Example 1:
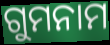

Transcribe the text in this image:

ଗୁମନାମ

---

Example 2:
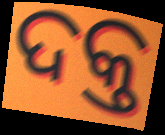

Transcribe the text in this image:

ଦକ୍ତ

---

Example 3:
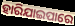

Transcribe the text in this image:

ହାରିଯାଇପାରେ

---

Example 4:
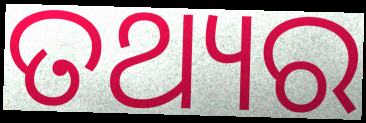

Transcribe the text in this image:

ତଥ୍ୟର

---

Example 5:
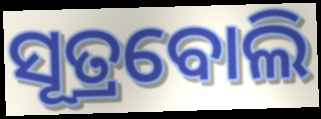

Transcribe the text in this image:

ସୂତ୍ରବୋଲି